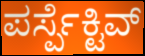
ಪರ್ಸ್ಪೆಕ್ಟಿವ್